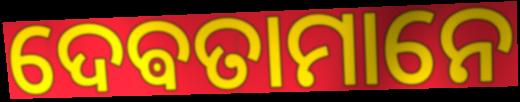
ଦେଵତାମାନେ